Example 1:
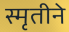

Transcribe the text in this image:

स्मृतीने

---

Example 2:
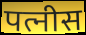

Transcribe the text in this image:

पत्‍नीस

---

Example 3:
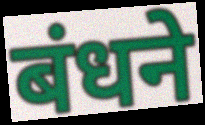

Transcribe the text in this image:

बंधने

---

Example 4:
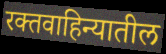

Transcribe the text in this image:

रक्तवाहिन्यातील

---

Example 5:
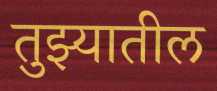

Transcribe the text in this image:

तुझ्यातील